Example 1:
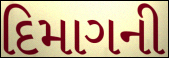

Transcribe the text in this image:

દિમાગની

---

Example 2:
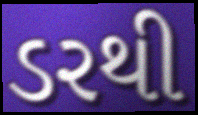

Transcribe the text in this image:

ડરથી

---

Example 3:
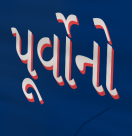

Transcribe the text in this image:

પૂર્વોનો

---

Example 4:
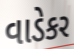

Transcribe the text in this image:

વાડેકર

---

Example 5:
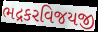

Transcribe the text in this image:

ભદ્રકરવિજયજી